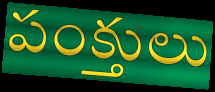
పంక్తులు